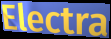
Electra